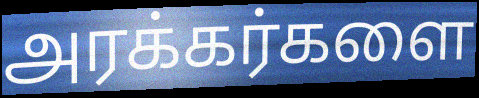
அரக்கர்களை